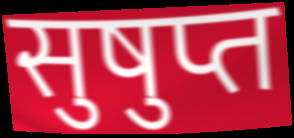
सुषुप्त